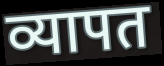
व्यापत